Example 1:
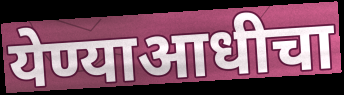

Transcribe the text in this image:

येण्याआधीचा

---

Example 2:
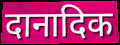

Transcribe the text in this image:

दानादिक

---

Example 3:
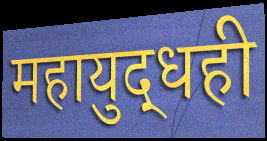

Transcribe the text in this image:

महायुद्धही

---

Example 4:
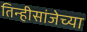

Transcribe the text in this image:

तिन्हीसांजेच्या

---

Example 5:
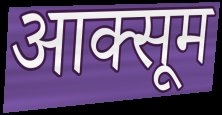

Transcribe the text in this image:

आक्सूम